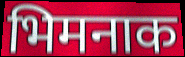
भिमनाक